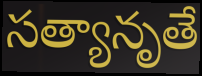
సత్యానృతే